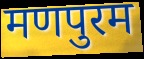
मणपुरम